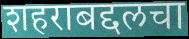
शहराबद्दलचा